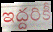
ఇద్దరికీ